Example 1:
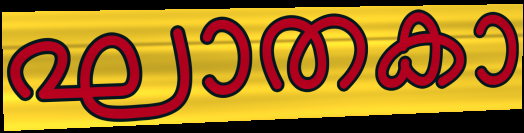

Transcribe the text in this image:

ഘാതകാ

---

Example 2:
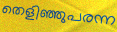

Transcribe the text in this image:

തെളിഞ്ഞുപരന്ന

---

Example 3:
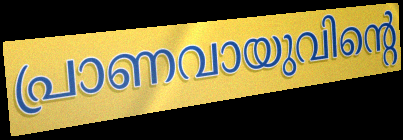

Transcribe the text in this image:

പ്രാണവായുവിന്റെ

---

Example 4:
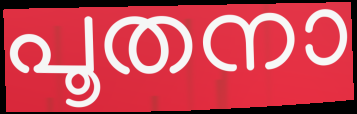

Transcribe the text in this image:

പൂതനാ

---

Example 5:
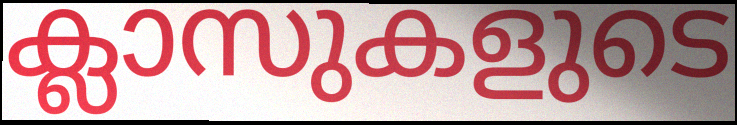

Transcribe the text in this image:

ക്ലാസുകളുടെ